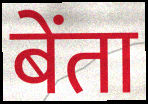
बेंता